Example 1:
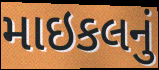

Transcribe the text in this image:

માઇકલનું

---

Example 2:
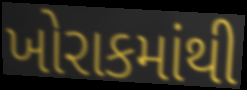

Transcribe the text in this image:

ખોરાકમાંથી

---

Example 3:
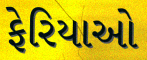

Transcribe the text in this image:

ફેરિયાઓ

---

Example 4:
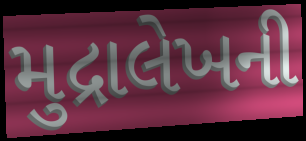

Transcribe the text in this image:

મુદ્રાલેખની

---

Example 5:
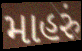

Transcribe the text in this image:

માહરું